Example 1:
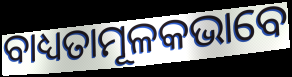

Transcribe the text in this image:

ବାଧ୍ୟତାମୂଳକଭାବେ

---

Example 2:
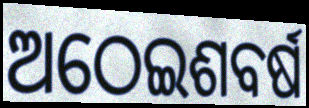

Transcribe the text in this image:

ଅଠେଇଶବର୍ଷ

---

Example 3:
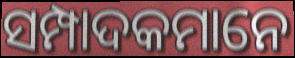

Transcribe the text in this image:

ସମ୍ପାଦକମାନେ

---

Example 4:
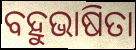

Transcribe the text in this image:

ବହୁଭାଷିତା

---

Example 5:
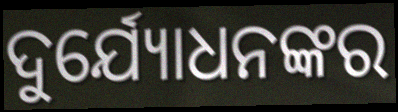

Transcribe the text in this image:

ଦୁର୍ଯ୍ୟୋଧନଙ୍କର